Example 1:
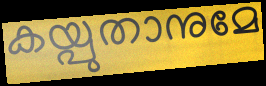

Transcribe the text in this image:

കയ്പുതാനുമേ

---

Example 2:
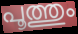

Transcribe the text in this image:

പൂത്തും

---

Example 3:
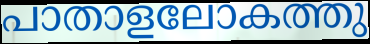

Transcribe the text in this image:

പാതാളലോകത്തു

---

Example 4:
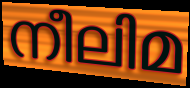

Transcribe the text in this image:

നീലിമ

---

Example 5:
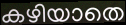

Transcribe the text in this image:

കഴിയാതെ